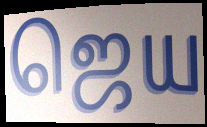
ஜெய